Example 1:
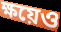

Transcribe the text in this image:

ক্ষয়েও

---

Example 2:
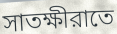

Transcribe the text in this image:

সাতক্ষীরাতে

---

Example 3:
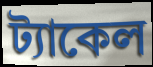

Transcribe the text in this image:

ট্যাকেল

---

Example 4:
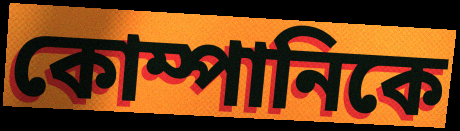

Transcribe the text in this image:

কোম্পানিকে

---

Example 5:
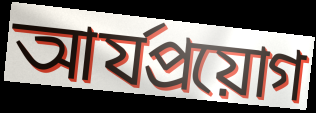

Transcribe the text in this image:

আর্যপ্রয়োগ